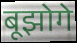
बूझोगे